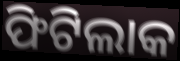
ଫିଟିଲାକ